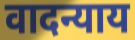
वादन्याय